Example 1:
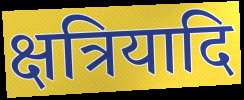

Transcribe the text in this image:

क्षत्रियादि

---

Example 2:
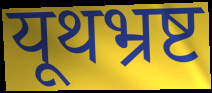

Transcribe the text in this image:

यूथभ्रष्ट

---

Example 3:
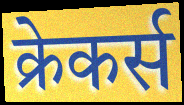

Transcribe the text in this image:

क्रेकर्स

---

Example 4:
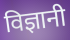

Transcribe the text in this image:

विज्ञानी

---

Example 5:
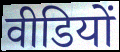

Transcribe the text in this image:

वीडियों